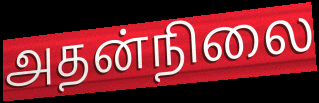
அதன்நிலை